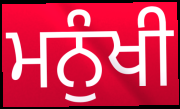
ਮਨੁੰਖੀ